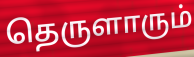
தெருளாரும்